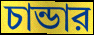
চান্ডার